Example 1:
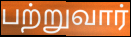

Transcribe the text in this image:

பற்றுவார்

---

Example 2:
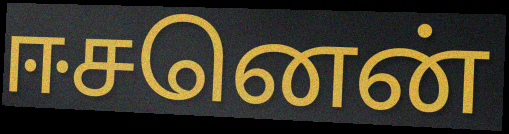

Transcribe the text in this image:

ஈசனென்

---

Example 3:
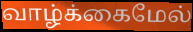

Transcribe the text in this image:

வாழ்க்கைமேல்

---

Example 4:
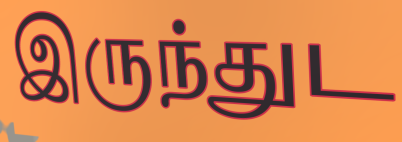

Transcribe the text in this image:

இருந்துட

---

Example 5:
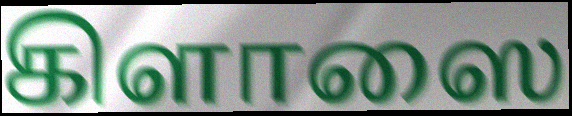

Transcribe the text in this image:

கிளாஸை